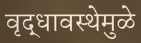
वृद्धावस्थेमुळे